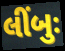
લીંબુઃ